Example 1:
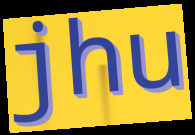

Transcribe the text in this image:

jhu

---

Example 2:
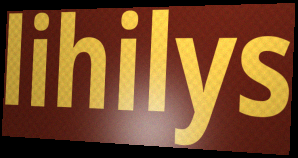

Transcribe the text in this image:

lihilys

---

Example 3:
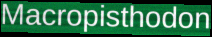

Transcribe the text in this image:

Macropisthodon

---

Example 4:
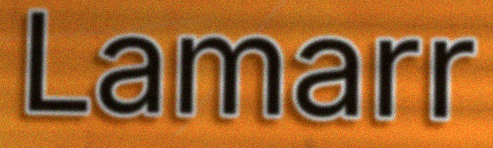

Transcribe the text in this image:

Lamarr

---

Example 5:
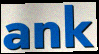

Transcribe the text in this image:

ank